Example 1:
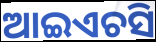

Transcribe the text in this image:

ଆଇଏଚସି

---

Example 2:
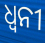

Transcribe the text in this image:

ଧ୍ବନୀ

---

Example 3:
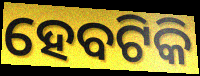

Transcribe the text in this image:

ହେବଟିକି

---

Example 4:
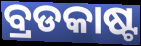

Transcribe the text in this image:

ବ୍ରଡକାଷ୍ଟ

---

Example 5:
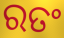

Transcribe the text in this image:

ରତଂ